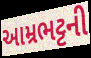
આમ્રભટ્ટની